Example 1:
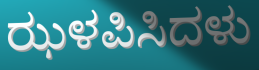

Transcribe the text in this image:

ಝಳಪಿಸಿದಳು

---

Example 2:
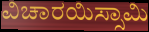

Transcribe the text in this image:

ವಿಚಾರಯಿಸ್ಸಾಮಿ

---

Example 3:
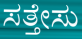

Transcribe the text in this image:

ಸತ್ತೇಸು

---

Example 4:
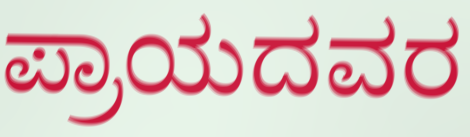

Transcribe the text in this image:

ಪ್ರಾಯದವರ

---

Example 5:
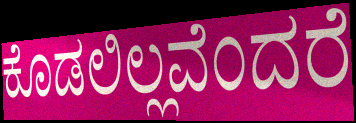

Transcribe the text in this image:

ಕೊಡಲಿಲ್ಲವೆಂದರೆ